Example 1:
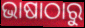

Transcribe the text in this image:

ଭାଷାଠାରୁ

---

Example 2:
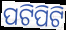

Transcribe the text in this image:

ପଟିପିଟି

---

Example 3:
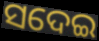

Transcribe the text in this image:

ସଦେଇ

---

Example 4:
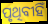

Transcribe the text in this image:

ପୃଥିବୀହିଁ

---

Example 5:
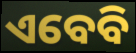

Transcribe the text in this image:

ଏବେବି